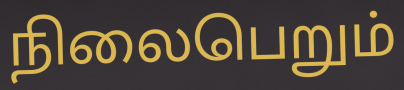
நிலைபெறும்